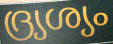
ദ്ര്യശ്യം